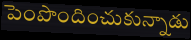
పెంపొందించుకున్నాడు